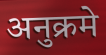
अनुक्रमे